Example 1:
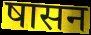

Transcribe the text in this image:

षासन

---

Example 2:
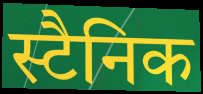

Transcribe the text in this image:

स्टैनिक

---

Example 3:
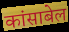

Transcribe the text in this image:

कांसाबेल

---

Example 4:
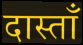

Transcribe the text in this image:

दास्ताँ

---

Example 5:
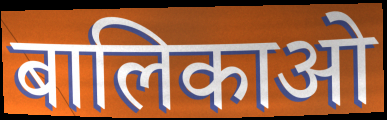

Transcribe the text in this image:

बालिकाओ